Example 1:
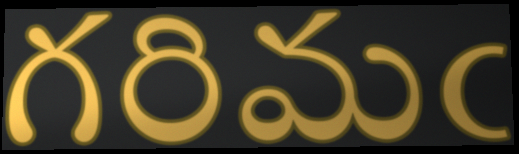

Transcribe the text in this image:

గరిమఁ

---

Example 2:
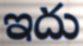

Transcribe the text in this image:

ఇదు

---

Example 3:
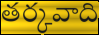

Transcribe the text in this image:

తర్కవాది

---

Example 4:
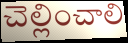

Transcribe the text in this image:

చెల్లించాలి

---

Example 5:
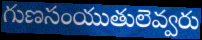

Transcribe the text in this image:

గుణసంయుతులెవ్వరు